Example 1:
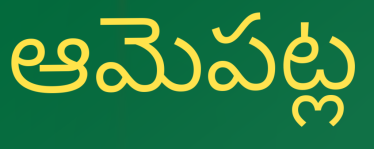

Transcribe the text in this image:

ఆమెపట్ల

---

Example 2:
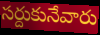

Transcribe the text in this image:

సర్దుకునేవారు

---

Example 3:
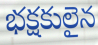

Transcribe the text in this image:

భక్షకులైన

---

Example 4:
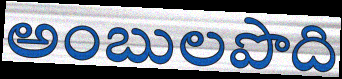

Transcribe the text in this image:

అంబులపొది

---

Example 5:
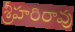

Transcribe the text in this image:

శ్రీహరిరావు